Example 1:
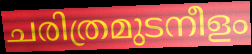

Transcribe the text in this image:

ചരിത്രമുടനീളം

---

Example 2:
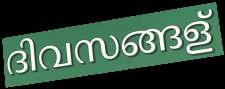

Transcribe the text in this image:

ദിവസങ്ങള്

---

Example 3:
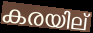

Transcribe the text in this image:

കരയില്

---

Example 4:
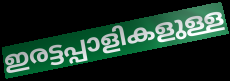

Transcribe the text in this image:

ഇരട്ടപ്പാളികളുള്ള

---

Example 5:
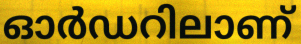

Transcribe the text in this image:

ഓർഡറിലാണ്